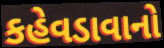
કહેવડાવાનો